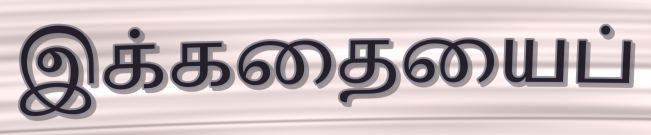
இக்கதையைப்